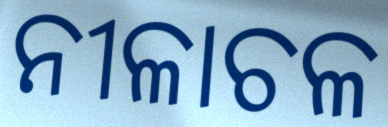
ନୀଳାଚଳ